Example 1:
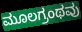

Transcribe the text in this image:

ಮೂಲಗ್ರಂಥವು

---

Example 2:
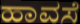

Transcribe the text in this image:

ಹಾವಸೆ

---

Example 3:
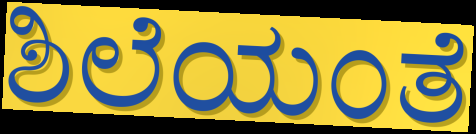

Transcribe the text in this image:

ಶಿಲೆಯಂತೆ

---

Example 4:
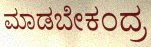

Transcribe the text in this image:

ಮಾಡಬೇಕಂದ್ರ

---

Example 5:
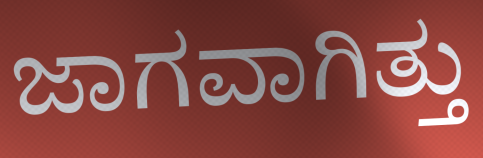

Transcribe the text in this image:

ಜಾಗವಾಗಿತ್ತು